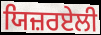
ਯਿਜ਼ਰਏਲੀ